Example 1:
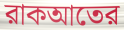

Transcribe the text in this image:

রাকআতের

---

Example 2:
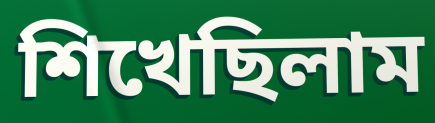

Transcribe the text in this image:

শিখেছিলাম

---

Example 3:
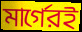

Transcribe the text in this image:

মার্গেরই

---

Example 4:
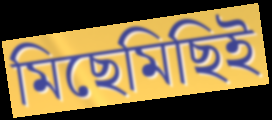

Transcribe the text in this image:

মিছেমিছিই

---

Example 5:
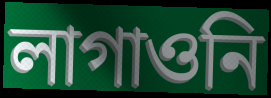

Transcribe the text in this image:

লাগাওনি